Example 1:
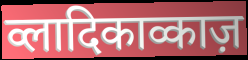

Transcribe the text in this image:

व्लादिकाव्काज़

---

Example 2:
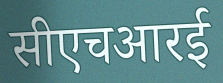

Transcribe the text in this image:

सीएचआरई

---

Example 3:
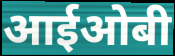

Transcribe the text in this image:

आईओबी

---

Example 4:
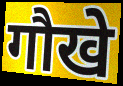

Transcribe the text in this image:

गौखे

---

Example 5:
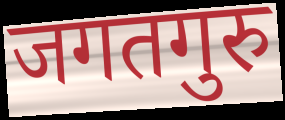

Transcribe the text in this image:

जगतगुरु